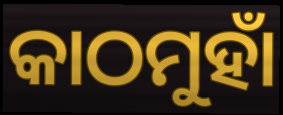
କାଠମୁହାଁ